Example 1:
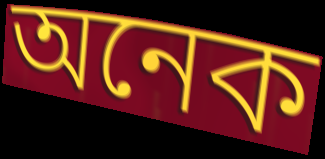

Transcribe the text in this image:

অনেক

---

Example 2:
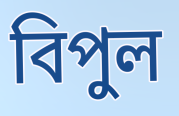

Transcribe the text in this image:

বিপুল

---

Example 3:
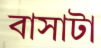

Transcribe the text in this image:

বাসাটা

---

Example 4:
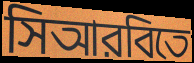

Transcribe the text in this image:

সিআরবিতে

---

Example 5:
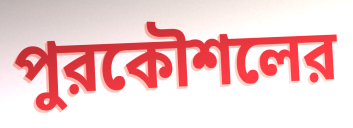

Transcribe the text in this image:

পুরকৌশলের